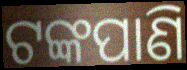
ଟଙ୍କପାଣି